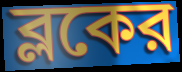
ব্লকের